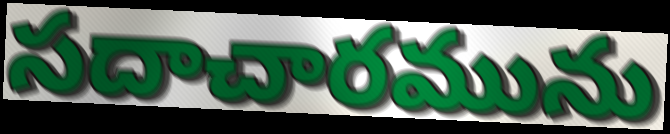
సదాచారమును